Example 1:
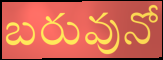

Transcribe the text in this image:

బరువునో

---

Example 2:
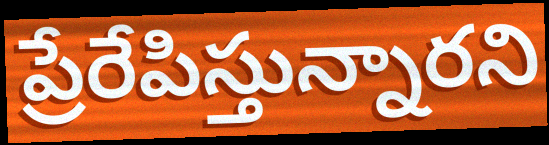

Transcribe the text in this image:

ప్రేరేపిస్తున్నారని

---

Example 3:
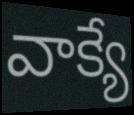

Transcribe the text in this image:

వాక్యే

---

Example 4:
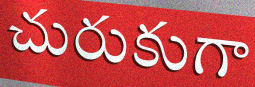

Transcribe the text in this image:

చురుకుగా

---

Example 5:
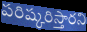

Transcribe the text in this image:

పరిష్కరిస్తారని